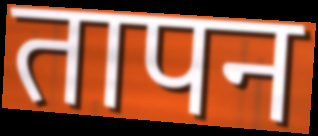
तापन